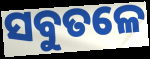
ସବୁତଳେ